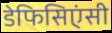
डेफिसिएंसी